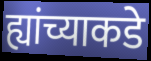
ह्यांच्याकडे